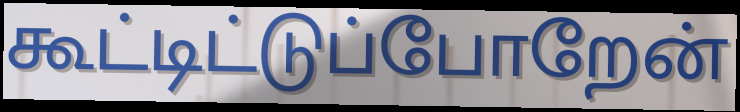
கூட்டிட்டுப்போறேன்